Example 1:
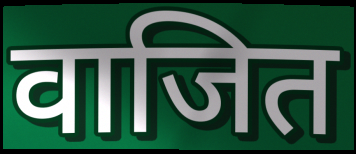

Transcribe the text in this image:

वाजित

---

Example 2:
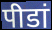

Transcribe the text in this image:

पीडां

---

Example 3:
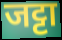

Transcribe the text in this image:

जट्टा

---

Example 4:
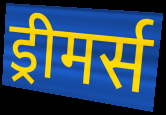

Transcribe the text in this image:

ड्रीमर्स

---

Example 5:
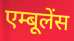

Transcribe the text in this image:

एम्बूलेंस